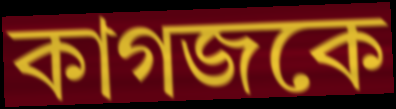
কাগজকে